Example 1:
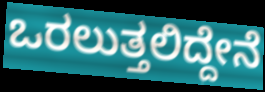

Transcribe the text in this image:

ಒರಲುತ್ತಲಿದ್ದೇನೆ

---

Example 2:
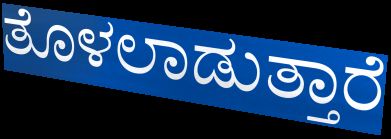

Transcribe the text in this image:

ತೊಳಲಾಡುತ್ತಾರೆ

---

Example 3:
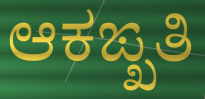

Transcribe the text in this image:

ಆಕಙ್ಖತಿ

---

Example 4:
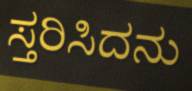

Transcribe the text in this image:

ಸ್ತರಿಸಿದನು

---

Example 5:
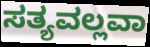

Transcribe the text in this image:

ಸತ್ಯವಲ್ಲವಾ